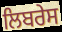
ਲਿਬਰੇਸ